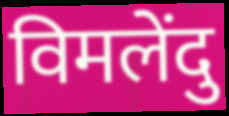
विमलेंदु